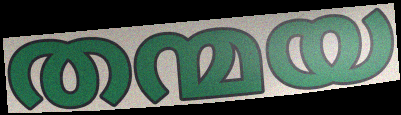
തന്മയ